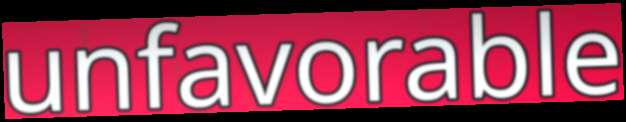
unfavorable